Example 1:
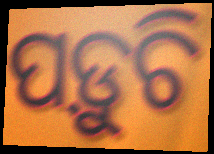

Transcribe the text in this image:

ପଡ଼ୁଚି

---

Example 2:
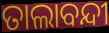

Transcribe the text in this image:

ତାଲାବନ୍ଦୀ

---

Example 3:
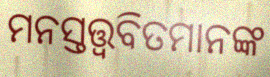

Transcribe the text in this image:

ମନସ୍ତତ୍ତ୍ୱବିତମାନଙ୍କ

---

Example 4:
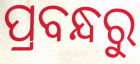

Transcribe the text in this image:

ପ୍ରବନ୍ଧରୁ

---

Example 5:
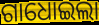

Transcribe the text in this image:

ଗାଧୋଇଲା